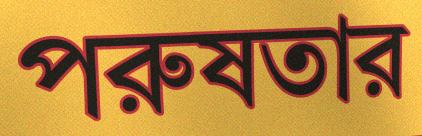
পরুষতার